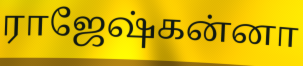
ராஜேஷ்கன்னா